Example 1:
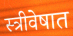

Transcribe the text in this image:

स्त्रीवेषात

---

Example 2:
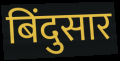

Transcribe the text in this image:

बिंदुसार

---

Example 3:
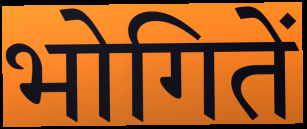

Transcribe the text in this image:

भोगितें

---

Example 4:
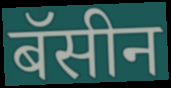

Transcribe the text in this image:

बॅसीन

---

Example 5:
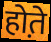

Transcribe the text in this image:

होत़े